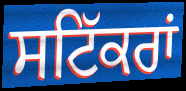
ਸਟਿੱਕਰਾਂ